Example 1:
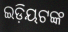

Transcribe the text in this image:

ଇଡ଼ିୟଟଙ୍କ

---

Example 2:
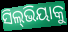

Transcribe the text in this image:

ସିଲ୍‍ଭିୟାକୁ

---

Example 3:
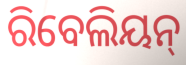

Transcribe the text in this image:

ରିବେଲିୟନ୍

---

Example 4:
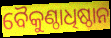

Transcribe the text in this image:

ବୈକୁଣ୍ଠାଧିଷ୍ଠାନ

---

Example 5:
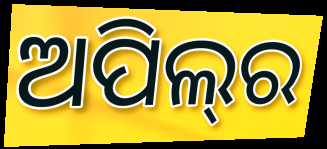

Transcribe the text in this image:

ଅପିଲ୍‌ର